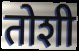
तोशी